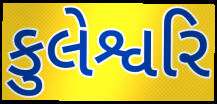
કુલેશ્વરિ